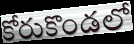
కోరుకొండలో